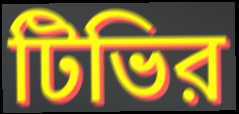
টিভির